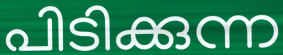
പിടിക്കുന്ന